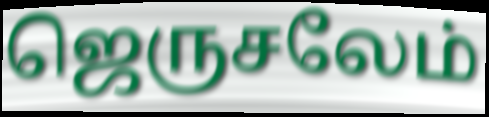
ஜெருசலேம்